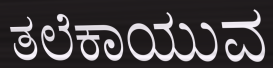
ತಲೆಕಾಯುವ